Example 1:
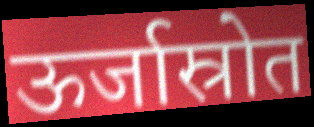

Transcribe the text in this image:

ऊर्जास्रोत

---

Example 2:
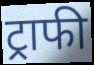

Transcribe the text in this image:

ट्राफी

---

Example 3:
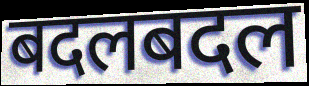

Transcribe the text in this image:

बदलबदल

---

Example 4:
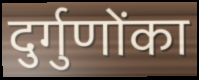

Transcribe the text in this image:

दुर्गुणोंका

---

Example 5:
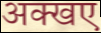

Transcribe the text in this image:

अक्खए